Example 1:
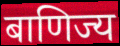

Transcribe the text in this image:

बाणिज्य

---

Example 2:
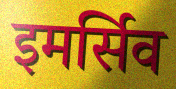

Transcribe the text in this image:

इमर्सिव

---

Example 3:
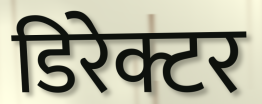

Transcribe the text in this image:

डिरेक्टर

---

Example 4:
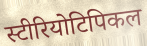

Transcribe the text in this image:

स्टीरियोटिपिकल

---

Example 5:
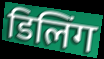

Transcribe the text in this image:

डिलिंग